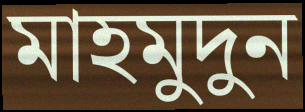
মাহমুদুন